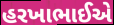
હરખાભાઈએ